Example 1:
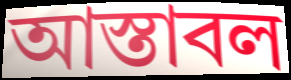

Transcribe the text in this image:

আস্তাবল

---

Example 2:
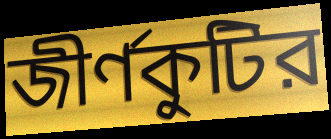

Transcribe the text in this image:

জীর্ণকুটির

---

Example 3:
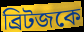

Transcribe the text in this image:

ব্রিটজকে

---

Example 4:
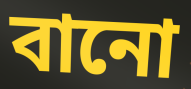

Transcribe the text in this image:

বানো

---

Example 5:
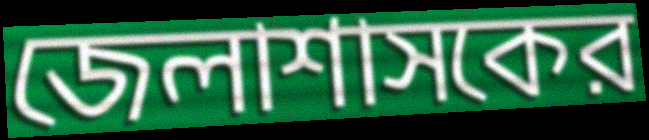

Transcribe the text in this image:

জেলাশাসকের